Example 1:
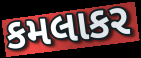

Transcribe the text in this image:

કમલાકર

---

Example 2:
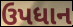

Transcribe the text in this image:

ઉપધાન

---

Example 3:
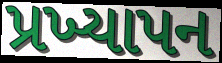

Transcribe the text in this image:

પ્રખ્યાપન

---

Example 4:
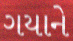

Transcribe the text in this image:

ગયાને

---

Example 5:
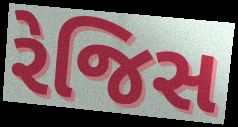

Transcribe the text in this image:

રેજિસ